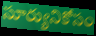
సూర్యునికోసం